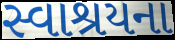
સ્વાશ્રયના